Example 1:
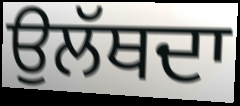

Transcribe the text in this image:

ਉਲੱਥਦਾ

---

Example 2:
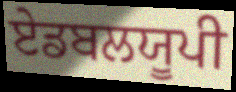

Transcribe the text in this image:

ਏਡਬਲਯੂਪੀ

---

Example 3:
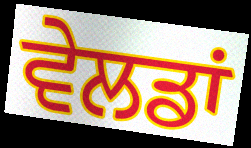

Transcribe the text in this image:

ਵੇਲਡਾਂ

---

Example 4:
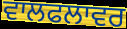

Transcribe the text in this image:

ਵਾਲਫਲਾਵਰ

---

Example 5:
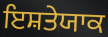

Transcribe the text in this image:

ਇਸ਼ਤੇਯਾਕ